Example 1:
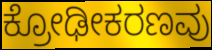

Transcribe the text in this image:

ಕ್ರೋಢೀಕರಣವು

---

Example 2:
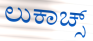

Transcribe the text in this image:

ಲುಕಾಚ್ಸ್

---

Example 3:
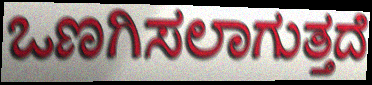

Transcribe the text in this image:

ಒಣಗಿಸಲಾಗುತ್ತದೆ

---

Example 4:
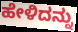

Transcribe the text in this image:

ಹೇಳಿದನ್ನು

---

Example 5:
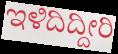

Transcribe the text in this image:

ಇಳಿದಿದ್ದೀರಿ